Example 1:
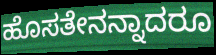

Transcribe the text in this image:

ಹೊಸತೇನನ್ನಾದರೂ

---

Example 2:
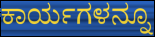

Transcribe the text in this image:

ಕಾರ್ಯಗಳನ್ನೂ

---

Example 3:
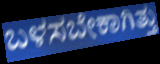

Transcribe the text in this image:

ಬಳಸಬೇಕಾಗಿತ್ತು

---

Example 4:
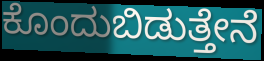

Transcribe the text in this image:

ಕೊಂದುಬಿಡುತ್ತೇನೆ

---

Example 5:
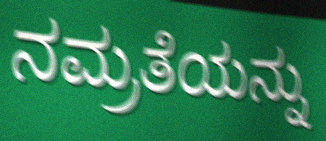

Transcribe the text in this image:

ನಮ್ರತೆಯನ್ನು